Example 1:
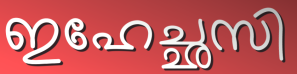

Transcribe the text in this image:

ഇഹേച്ഛസി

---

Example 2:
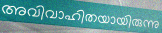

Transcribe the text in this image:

അവിവാഹിതയായിരുന്നു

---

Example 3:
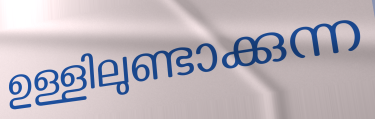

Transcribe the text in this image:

ഉള്ളിലുണ്ടാക്കുന്ന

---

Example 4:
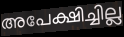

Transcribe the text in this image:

അപേക്ഷിച്ചില്ല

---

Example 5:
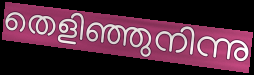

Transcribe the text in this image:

തെളിഞ്ഞുനിന്നു